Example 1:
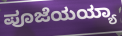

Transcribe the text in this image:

ಪೂಜೆಯಯ್ಯಾ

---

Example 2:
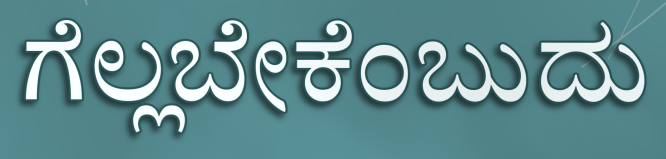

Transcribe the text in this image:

ಗೆಲ್ಲಬೇಕೆಂಬುದು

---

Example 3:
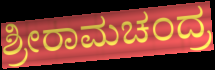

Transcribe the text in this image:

ಶ್ರೀರಾಮಚಂದ್ರ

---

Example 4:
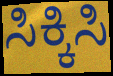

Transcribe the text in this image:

ಸಿಕ್ಕಿಸಿ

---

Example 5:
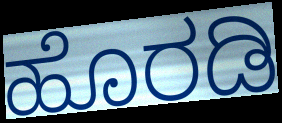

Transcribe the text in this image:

ಹೊರಡಿ